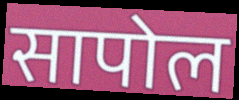
सापोल